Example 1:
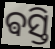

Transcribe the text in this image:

ଵସ୍ତି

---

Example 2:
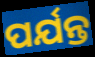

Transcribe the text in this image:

ପର୍ଯନ୍ତ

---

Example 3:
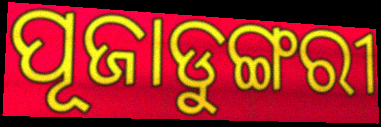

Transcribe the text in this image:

ପୂଜାଡୁଙ୍ଗରୀ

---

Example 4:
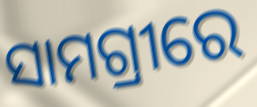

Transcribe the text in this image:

ସାମଗ୍ରୀରେ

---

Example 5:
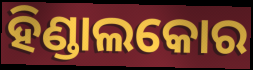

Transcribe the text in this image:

ହିଣ୍ଡାଲକୋର